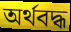
অর্থবদ্ধ